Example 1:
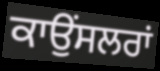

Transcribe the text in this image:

ਕਾਉਂਸਲਰਾਂ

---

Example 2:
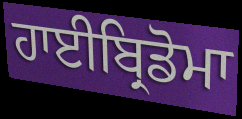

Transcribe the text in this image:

ਹਾਈਬ੍ਰਿਡੋਮਾ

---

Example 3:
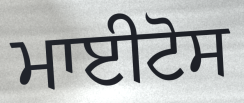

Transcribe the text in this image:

ਮਾਈਟੋਸ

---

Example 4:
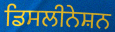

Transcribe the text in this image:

ਡਿਸਲੀਨੇਸ਼ਨ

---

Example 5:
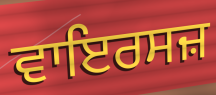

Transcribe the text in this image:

ਵਾਇਰਸਜ਼